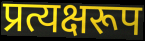
प्रत्यक्षरूप